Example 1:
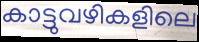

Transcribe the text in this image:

കാട്ടുവഴികളിലെ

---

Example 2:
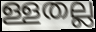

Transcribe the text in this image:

ള്ളതല്ല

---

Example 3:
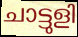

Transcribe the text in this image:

ചാട്ടുളി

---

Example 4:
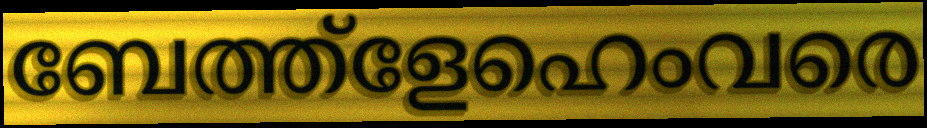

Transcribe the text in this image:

ബേത്ത്ളേഹെംവരെ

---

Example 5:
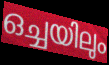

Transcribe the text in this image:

ഒച്ചയിലും